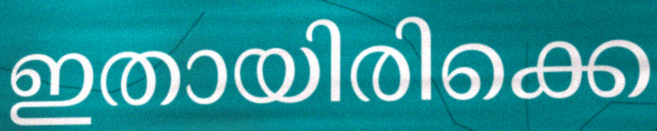
ഇതായിരിക്കെ